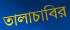
তালাচাবির